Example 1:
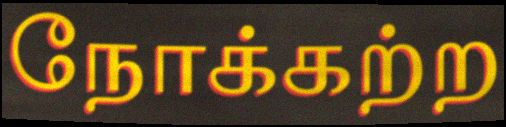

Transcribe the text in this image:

நோக்கற்ற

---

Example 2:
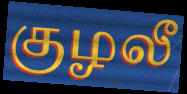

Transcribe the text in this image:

குழலீ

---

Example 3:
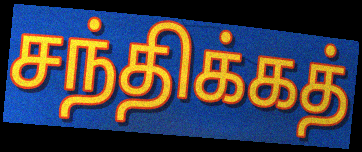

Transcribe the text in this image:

சந்திக்கத்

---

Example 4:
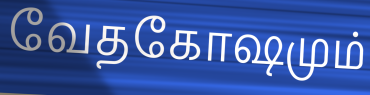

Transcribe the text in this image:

வேதகோஷமும்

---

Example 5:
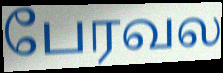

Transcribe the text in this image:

பேரவல